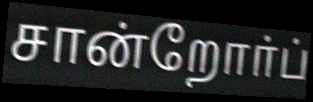
சான்றோர்ப்